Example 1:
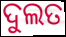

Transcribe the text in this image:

ଦୁଲତ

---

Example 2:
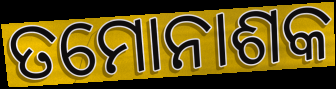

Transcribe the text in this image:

ତମୋନାଶକ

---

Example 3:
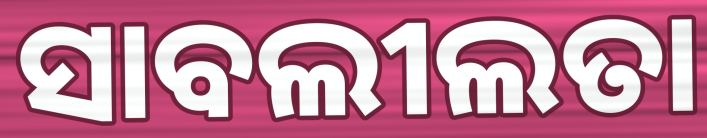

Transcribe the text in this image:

ସାବଲୀଲତା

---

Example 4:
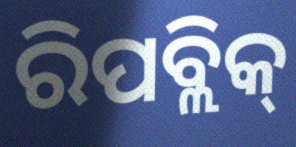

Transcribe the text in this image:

ରିପବ୍ଲିକ୍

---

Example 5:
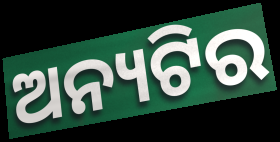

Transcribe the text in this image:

ଅନ୍ୟଟିର